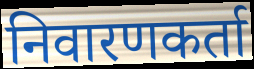
निवारणकर्ता